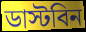
ডাস্টবিন